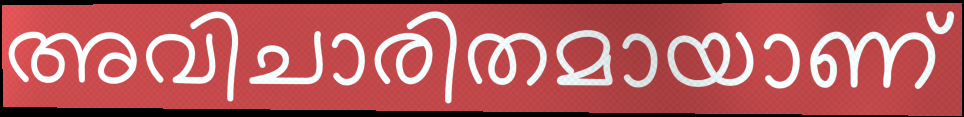
അവിചാരിതമായാണ്